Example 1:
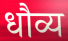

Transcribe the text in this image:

धौव्य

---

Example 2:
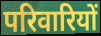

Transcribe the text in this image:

परिवारियों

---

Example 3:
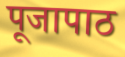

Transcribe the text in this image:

पूजापाठ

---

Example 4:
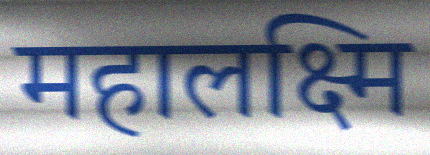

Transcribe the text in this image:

महालक्ष्मि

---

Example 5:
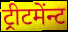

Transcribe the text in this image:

ट्रीटमेंन्ट